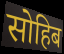
सोहिब